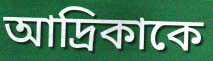
আদ্রিকাকে